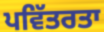
ਪਵਿੱਤਰਤਾ